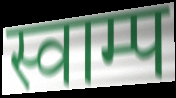
स्वाम्प